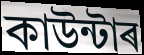
কাউন্টাৰ